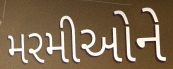
મરમીઓને